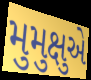
મુમુક્ષુએ